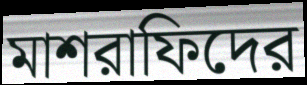
মাশরাফিদের